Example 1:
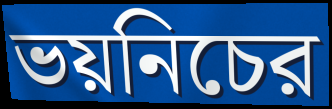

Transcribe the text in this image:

ভয়নিচের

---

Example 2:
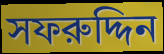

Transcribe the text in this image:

সফরুদ্দিন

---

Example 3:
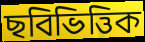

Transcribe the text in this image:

ছবিভিত্তিক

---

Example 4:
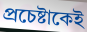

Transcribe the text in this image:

প্রচেষ্টাকেই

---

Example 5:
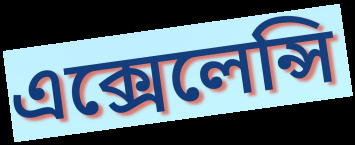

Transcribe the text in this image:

এক্সেলেন্সি